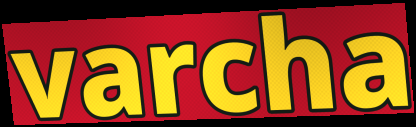
varcha